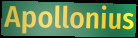
Apollonius